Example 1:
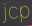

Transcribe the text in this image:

jcp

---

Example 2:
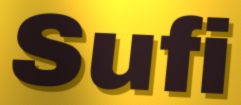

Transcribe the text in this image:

Sufi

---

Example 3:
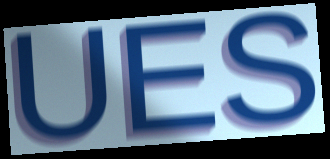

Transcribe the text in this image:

UES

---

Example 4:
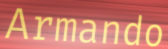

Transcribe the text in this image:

Armando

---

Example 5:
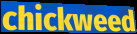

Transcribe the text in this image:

chickweed